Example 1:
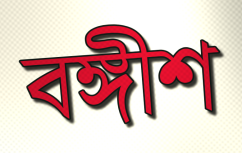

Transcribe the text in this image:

বঙ্গীশ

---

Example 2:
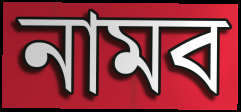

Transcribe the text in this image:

নামব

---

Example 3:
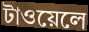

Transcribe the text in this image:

টাওয়েলে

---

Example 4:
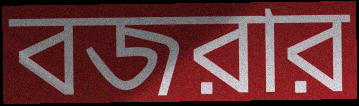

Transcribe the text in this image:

বজরার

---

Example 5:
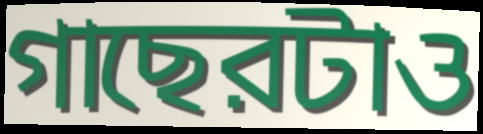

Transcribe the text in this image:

গাছেরটাও